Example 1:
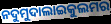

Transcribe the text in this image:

ନଦୁମୁଦାଲାଇକୁଲମର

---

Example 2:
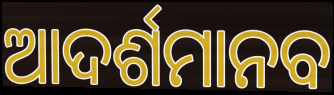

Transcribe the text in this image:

ଆଦର୍ଶମାନବ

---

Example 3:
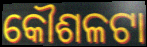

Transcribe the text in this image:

କୌଶଳଟା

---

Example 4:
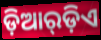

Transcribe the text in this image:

ଡ଼ିଆର୍‌ଡ଼ିଏ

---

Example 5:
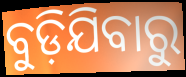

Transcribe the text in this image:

ବୁଡ଼ିଯିବାରୁ